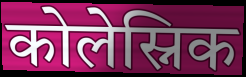
कोलेस्निक